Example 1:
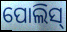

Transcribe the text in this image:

ପୋଲିସ୍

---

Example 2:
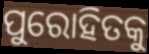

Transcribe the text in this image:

ପୁରୋହିତକୁ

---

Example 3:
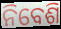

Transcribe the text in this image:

ନିବେଶି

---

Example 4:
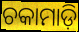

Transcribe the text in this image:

ଚକାମାଡ଼ି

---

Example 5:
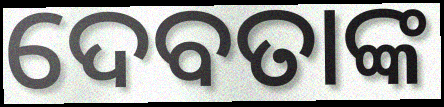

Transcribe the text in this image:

ଦେବତାଙ୍କ